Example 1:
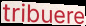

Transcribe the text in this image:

tribuere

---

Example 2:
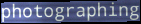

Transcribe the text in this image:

photographing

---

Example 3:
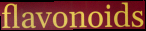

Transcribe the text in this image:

flavonoids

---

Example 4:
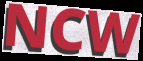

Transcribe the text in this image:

NCW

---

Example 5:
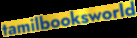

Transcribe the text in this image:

tamilbooksworld